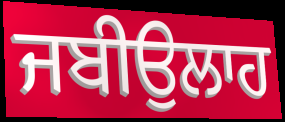
ਜਬੀਉਲਾਹ